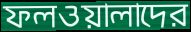
ফলওয়ালাদের